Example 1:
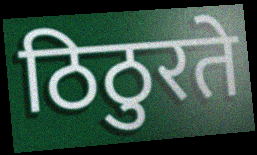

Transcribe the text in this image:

ठिठुरते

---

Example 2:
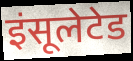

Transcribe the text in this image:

इंसूलेटेड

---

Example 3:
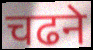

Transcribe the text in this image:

चढने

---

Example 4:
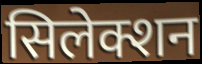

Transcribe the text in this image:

सिलेक्शन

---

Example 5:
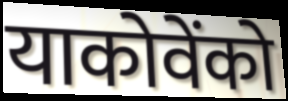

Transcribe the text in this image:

याकोवेंको